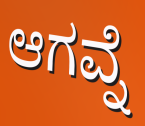
ಆಗವ್ನೆ